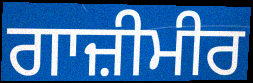
ਗਾਜ਼ੀਮੀਰ